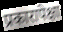
प्रकारापेक्षा